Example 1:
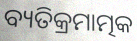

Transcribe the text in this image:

ବ୍ୟତିକ୍ରମାତ୍ମକ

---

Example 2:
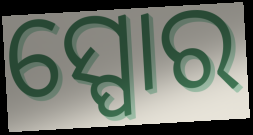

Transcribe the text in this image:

ସ୍ପୋର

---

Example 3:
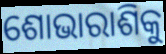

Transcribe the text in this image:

ଶୋଭାରାଶିକୁ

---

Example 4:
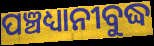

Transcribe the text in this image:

ପଞ୍ଚଧ୍ୟାନୀବୁଦ୍ଧ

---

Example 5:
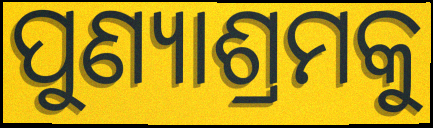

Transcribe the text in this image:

ପୁଣ୍ୟାଶ୍ରମକୁ